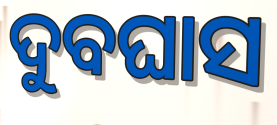
ଦୁବଘାସ